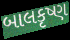
બાલકૃષ્ણ